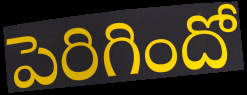
పెరిగిందో